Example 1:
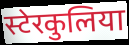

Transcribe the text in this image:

स्टेरकुलिया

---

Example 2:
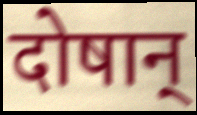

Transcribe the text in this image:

दोषान्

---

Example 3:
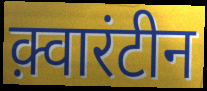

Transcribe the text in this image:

क़्वारंटीन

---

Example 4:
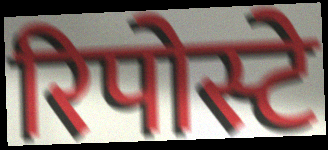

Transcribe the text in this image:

रिपोस्टे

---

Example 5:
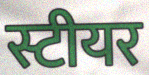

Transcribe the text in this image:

स्टीयर